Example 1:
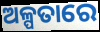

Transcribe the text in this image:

ଅଳ୍ପତାରେ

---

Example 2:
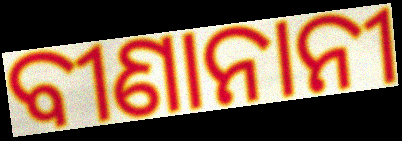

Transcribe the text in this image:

ବୀଣାନାନୀ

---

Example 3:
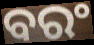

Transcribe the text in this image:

ବରଂ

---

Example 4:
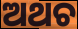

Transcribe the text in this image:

ଅଥଚ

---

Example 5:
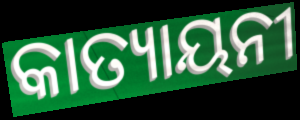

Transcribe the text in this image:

କାତ୍ୟାୟନୀ